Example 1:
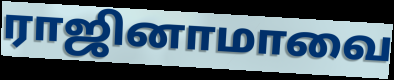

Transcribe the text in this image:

ராஜினாமாவை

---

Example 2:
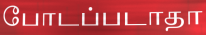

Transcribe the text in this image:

போடப்படாதா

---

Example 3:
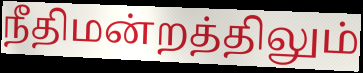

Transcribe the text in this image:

நீதிமன்றத்திலும்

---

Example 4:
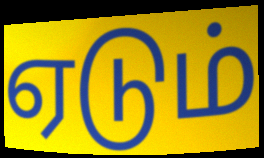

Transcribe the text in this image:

ஏடும்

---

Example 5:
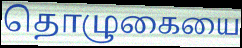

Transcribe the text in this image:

தொழுகையை